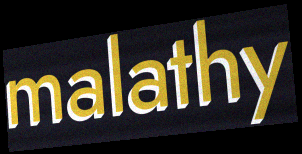
malathy